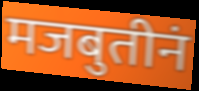
मजबुतीनं